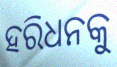
ହରିଧନକୁ